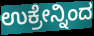
ಉಕ್ರೇನ್ನಿಂದ